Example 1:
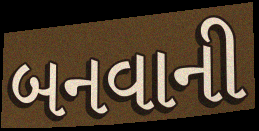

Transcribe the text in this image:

બનવાની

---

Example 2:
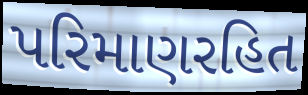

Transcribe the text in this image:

પરિમાણરહિત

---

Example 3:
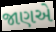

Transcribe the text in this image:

જાણએ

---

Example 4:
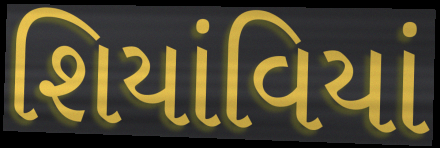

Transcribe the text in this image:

શિયાંવિયાં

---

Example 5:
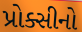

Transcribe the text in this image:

પ્રોક્સીનો